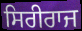
ਸਿਰੀਰਾਜ